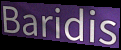
Baridis